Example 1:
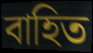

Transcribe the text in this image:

বাহিত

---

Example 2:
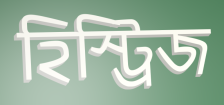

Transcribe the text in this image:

হিস্ট্রিজ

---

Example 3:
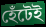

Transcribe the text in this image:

হেঁটেই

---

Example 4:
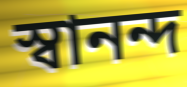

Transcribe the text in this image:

স্বানন্দ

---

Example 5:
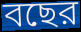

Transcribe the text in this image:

বছের